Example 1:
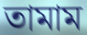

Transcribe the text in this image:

তামাম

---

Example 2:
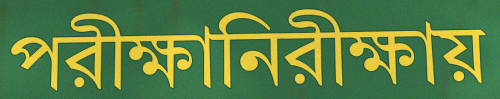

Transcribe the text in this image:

পরীক্ষানিরীক্ষায়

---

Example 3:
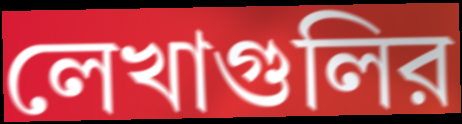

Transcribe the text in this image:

লেখাগুলির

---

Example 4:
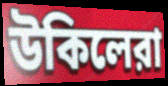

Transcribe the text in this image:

উকিলেরা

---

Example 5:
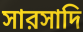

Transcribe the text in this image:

সারসাদি